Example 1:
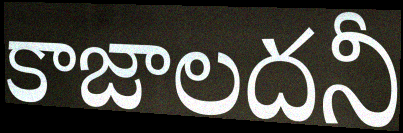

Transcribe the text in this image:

కాజాలదనీ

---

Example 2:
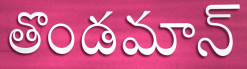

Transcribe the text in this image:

తొండమాన్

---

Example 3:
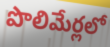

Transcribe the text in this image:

పొలిమేర్లలో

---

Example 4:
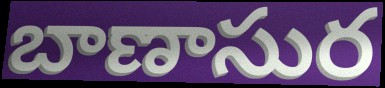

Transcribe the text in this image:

బాణాసుర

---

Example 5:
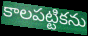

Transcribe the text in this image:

కాలపట్టికను